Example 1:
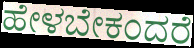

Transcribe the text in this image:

ಹೇಳಬೇಕಂದರೆ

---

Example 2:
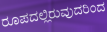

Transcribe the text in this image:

ರೂಪದಲ್ಲಿರುವುದರಿಂದ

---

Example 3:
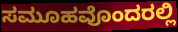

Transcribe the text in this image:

ಸಮೂಹವೊಂದರಲ್ಲಿ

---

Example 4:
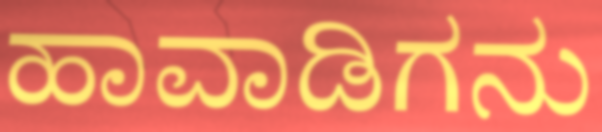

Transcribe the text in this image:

ಹಾವಾಡಿಗನು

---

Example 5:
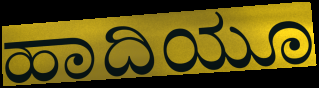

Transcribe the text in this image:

ಹಾದಿಯೂ